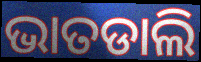
ଭାତଡାଲି